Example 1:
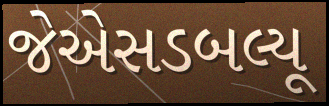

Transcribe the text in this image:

જેએસડબલ્યૂ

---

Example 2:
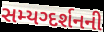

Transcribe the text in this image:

સમ્યગ્દર્શનની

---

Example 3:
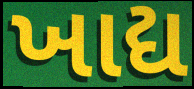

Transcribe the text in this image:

ખાદ્ય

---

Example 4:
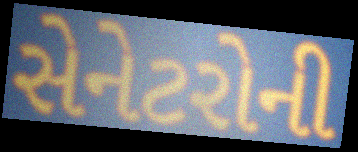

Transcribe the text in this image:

સેનેટરોની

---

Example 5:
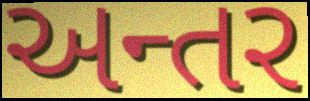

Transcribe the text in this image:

અન્તર